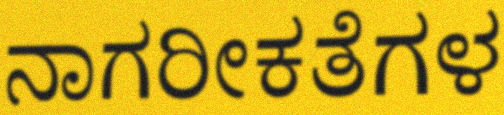
ನಾಗರೀಕತೆಗಳ